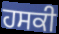
ਹਸਕੀ